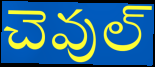
చెవుల్